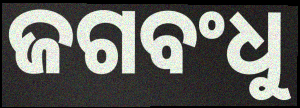
ଜଗବଂଧୁ